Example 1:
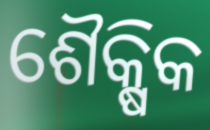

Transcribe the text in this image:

ଶୈକ୍ଷିକ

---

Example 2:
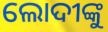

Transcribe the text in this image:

ଲୋଦୀଙ୍କୁ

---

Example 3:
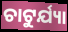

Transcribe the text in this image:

ଚାଟୁର୍ଯ୍ୟା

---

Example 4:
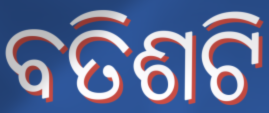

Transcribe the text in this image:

ବତିଶଟି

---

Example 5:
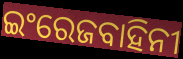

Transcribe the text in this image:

ଇଂରେଜବାହିନୀ